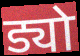
ड्यो